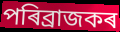
পৰিব্ৰাজকৰ